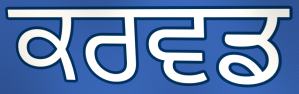
ਕਰਵਡ